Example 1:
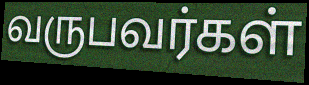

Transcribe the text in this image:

வருபவர்கள்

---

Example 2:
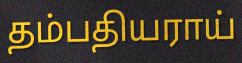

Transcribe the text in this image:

தம்பதியராய்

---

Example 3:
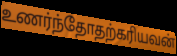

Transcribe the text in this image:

உணர்ந்தோதற்கரியவன்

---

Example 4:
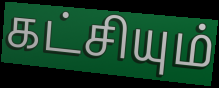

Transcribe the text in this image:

கட்சியும்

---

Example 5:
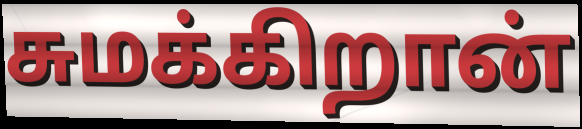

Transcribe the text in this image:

சுமக்கிறான்